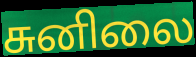
சுனிலை